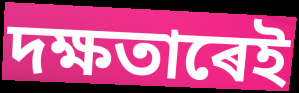
দক্ষতাৰেই